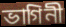
ভাগিনী